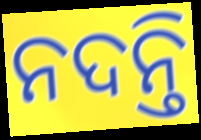
ନଦନ୍ତି